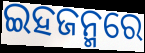
ଇହଜନ୍ମରେ